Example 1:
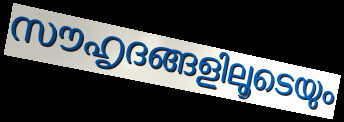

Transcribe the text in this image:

സൗഹൃദങ്ങളിലൂടെയും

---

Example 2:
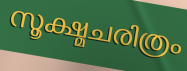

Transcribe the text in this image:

സൂക്ഷ്മചരിത്രം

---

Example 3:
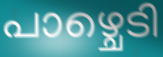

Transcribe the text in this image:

പാഴ്ചെടി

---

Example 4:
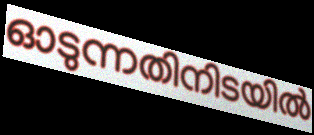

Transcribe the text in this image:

ഓടുന്നതിനിടയിൽ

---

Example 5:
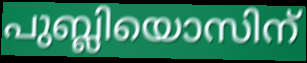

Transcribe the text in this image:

പുബ്ലിയൊസിന്